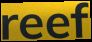
reef